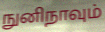
நுனிநாவும்